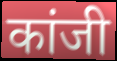
कांजी